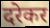
दरेकर